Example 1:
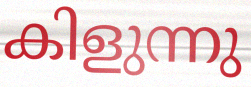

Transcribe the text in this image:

കിളുന്നു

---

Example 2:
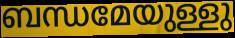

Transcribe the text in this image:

ബന്ധമേയുള്ളു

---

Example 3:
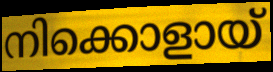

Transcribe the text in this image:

നിക്കൊളായ്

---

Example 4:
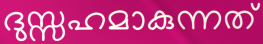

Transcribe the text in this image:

ദുസ്സഹമാകുന്നത്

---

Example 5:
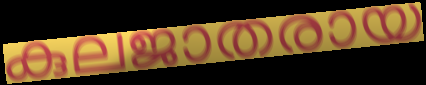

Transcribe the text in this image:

കുലജാതരായ